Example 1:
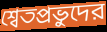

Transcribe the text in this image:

শ্বেতপ্রভুদের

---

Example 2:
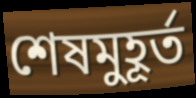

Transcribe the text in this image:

শেষমুহূর্ত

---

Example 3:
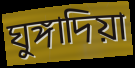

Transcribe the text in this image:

ঘুঙ্গাদিয়া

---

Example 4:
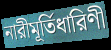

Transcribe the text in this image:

নারীমূর্তিধারিণী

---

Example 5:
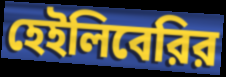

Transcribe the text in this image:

হেইলিবেরির